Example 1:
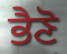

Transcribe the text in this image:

ਭੈਣੋ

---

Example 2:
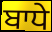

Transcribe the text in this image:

ਬਾਧੇ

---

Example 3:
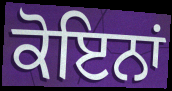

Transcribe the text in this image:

ਕੋਇਨਾਂ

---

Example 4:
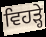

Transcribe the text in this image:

ਵਿਹੜ੍ਹੇ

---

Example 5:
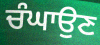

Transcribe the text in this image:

ਚੰਘਾਉਣ